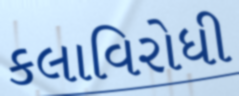
કલાવિરોધી